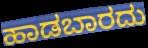
ಹಾಡಬಾರದು